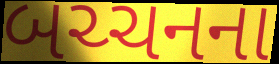
બચ્ચનના